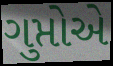
ગુપ્તોએ